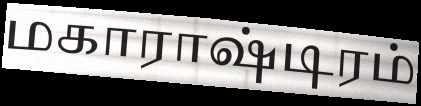
மகாராஷ்டிரம்